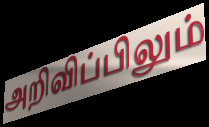
அறிவிப்பிலும்